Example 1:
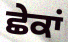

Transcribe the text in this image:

ਛੇਕਾਂ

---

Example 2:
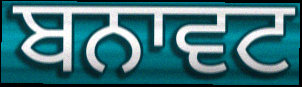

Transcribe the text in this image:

ਬਨਾਵਟ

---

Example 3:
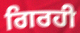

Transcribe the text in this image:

ਗਿਰਹੀ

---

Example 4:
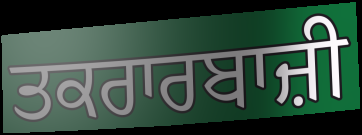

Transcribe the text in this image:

ਤਕਰਾਰਬਾਜ਼ੀ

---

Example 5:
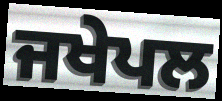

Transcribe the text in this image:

ਜਖੇਪਲ